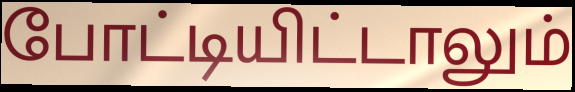
போட்டியிட்டாலும்